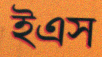
ইএস